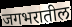
जगभरातील